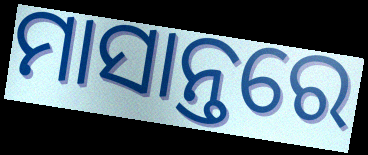
ମାସାନ୍ତରେ